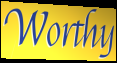
Worthy